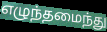
எழுந்தமைந்து